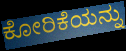
ಕೋರಿಕೆಯನ್ನು